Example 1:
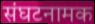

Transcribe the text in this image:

संघटनामक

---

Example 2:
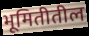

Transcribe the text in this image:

भूमितीतील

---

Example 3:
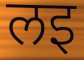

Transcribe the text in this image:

लइ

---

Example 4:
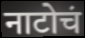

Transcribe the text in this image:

नाटोचं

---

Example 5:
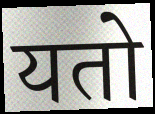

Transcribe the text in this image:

यतो